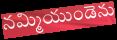
నమ్మియుండెను